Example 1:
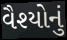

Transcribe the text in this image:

વૈશ્યોનું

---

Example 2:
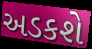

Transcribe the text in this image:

અડકશે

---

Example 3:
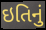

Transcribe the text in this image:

ઇતિનું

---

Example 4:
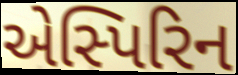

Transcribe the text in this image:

એસ્પિરિન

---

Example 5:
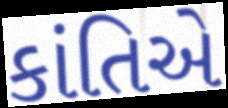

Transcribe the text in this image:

કાંતિએ